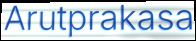
Arutprakasa